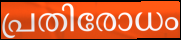
പ്രതിരോധം